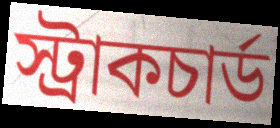
স্ট্রাকচার্ড